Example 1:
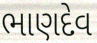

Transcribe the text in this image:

ભાણદેવ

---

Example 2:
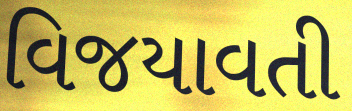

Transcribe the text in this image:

વિજયાવતી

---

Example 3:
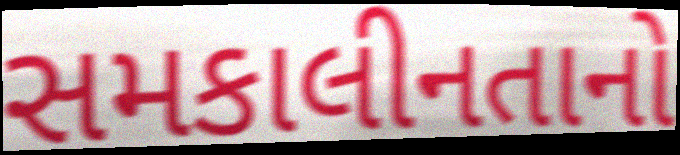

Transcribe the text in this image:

સમકાલીનતાનો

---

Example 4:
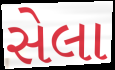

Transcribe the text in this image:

સેલા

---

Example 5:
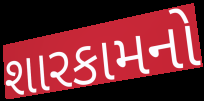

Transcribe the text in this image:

શારકામનો